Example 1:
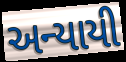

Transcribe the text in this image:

અન્યાયી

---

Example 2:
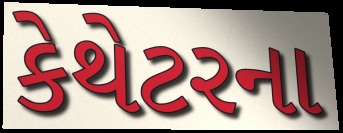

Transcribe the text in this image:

કેથેટરના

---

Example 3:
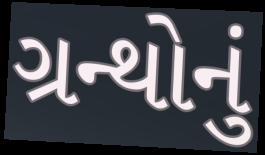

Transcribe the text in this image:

ગ્રન્થોનું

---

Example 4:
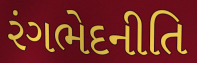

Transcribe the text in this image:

રંગભેદનીતિ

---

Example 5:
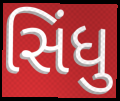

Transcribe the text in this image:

સિંધુ